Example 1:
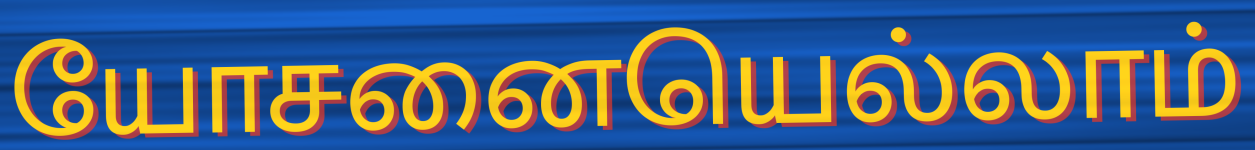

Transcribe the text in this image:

யோசனையெல்லாம்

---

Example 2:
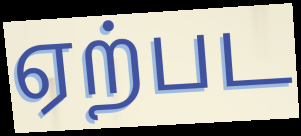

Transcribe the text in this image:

ஏற்பட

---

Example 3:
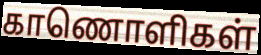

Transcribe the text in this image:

காணொளிகள்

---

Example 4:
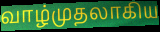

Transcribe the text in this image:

வாழ்முதலாகிய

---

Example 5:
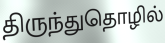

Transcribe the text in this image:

திருந்துதொழில்